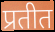
प्रतीत